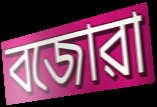
বজোৱা